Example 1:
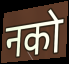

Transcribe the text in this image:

नको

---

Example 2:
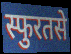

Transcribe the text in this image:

स्फुरतसे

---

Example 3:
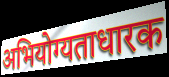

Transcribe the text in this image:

अभियोग्यताधारक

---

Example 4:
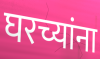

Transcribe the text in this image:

घरच्‍यांना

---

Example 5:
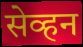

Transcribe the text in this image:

सेव्हन